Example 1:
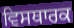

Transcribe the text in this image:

ਵਿਸਥਾਰਕ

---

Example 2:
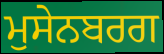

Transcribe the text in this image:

ਮੁਸੇਨਬਰਗ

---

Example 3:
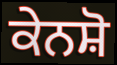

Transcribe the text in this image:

ਕੇਨਸ਼ੋ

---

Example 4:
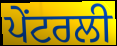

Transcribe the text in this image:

ਪੇਂਟਰਲੀ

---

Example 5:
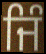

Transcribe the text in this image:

ਜਿੰ